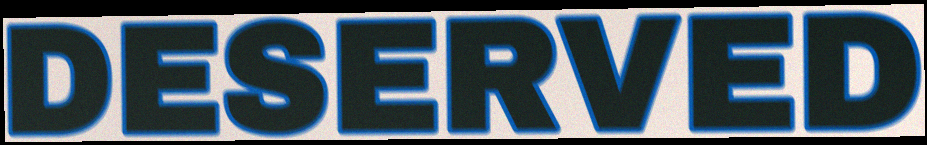
DESERVED